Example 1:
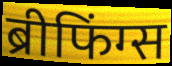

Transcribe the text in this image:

ब्रीफिंग्स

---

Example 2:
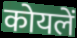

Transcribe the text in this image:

कोयलें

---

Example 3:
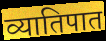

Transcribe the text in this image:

व्यातिपात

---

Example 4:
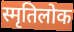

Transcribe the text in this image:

स्मृतिलोक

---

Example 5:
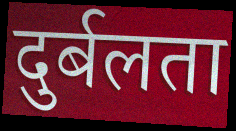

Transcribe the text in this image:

दुर्बलता